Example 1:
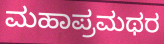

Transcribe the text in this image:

ಮಹಾಪ್ರಮಥರ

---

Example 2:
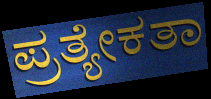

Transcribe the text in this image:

ಪ್ರತ್ಯೇಕತಾ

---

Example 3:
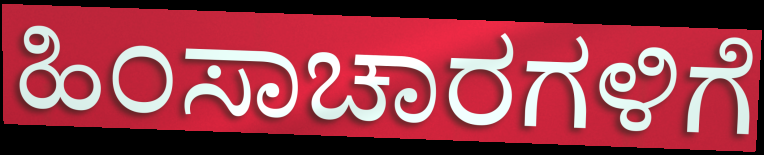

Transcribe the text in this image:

ಹಿಂಸಾಚಾರಗಳಿಗೆ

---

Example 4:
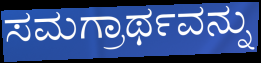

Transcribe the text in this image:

ಸಮಗ್ರಾರ್ಥವನ್ನು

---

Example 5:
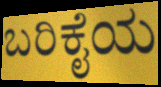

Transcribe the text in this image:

ಬರಿಕೈಯ